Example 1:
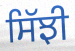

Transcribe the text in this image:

ਸਿੱਝੀ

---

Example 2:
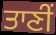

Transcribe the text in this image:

ਤਾਣੀਂ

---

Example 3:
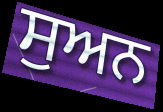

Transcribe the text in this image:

ਸੁਅਨ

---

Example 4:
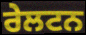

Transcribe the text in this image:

ਰੇਲਟਨ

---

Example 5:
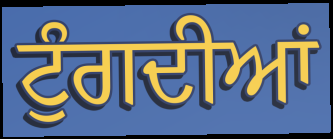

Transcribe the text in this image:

ਟੁੰਗਦੀਆਂ